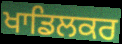
ਖਾਡਿਲਕਰ